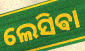
ଲେସିଵା